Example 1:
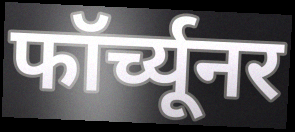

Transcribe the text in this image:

फॉर्च्यूनर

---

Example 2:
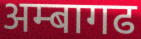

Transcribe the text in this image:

अम्बागढ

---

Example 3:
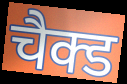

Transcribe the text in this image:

चैक्ड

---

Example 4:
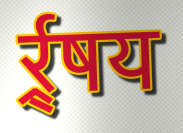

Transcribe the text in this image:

र्र्र्षय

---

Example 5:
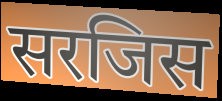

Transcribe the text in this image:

सरजिस